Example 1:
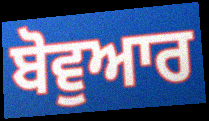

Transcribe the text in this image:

ਬੋਵੁਆਰ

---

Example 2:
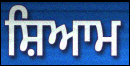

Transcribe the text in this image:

ਸ਼ਿਆਮ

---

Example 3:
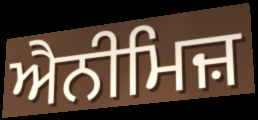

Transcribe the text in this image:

ਐਨੀਮਿਜ਼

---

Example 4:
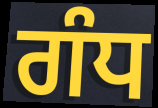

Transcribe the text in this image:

ਗੰਧ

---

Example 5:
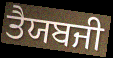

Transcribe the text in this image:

ਤੈਯਬਜੀ